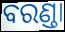
ବରଣ୍ଡା